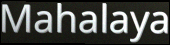
Mahalaya